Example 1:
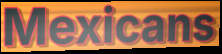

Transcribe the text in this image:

Mexicans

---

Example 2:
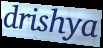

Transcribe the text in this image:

drishya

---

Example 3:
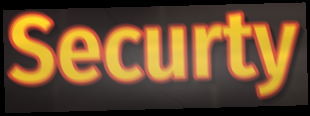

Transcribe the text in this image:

Securty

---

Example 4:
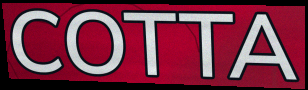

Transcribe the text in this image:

COTTA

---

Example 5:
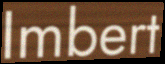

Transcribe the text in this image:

Imbert